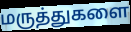
மருத்துகளை